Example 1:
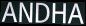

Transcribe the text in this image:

ANDHA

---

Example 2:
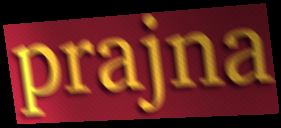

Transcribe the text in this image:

prajna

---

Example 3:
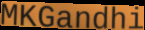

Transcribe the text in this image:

MKGandhi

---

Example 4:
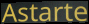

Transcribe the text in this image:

Astarte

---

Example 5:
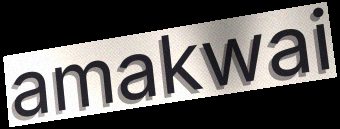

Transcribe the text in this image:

amakwai